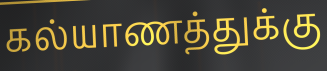
கல்யாணத்துக்கு